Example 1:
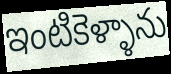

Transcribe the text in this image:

ఇంటికెళ్ళాను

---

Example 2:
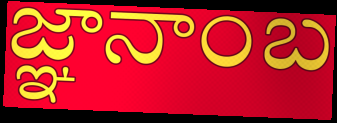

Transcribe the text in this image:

జ్ఞానాంబ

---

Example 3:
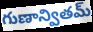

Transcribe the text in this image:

గుణాన్వితమ్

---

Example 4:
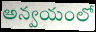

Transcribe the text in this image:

అన్వయంలో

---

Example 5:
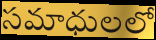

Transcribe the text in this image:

సమాధులలో